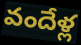
వందేళ్ల